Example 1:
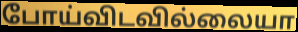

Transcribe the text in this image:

போய்விடவில்லையா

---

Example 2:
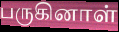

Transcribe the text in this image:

பருகினாள்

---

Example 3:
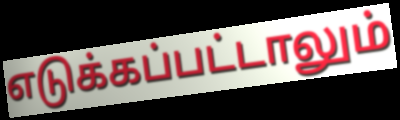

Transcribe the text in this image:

எடுக்கப்பட்டாலும்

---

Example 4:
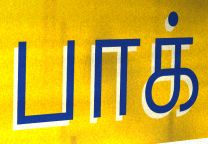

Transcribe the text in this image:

பாக்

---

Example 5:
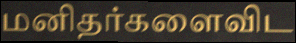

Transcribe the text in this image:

மனிதர்களைவிட